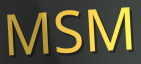
MSM